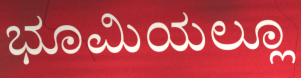
ಭೂಮಿಯಲ್ಲೂ